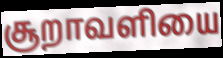
சூறாவளியை